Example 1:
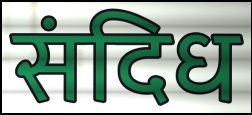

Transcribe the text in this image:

संदिध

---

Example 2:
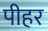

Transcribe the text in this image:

पीहर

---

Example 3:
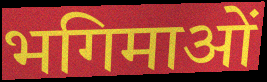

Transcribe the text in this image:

भगिमाओं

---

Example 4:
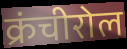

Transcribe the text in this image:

क्रंचीरोल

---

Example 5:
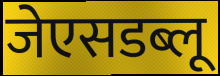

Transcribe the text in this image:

जेएसडब्‍लू